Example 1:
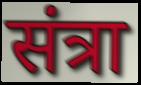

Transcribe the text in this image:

संत्रा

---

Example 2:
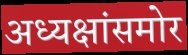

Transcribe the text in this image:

अध्यक्षांसमोर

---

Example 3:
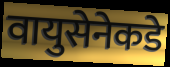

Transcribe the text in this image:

वायुसेनेकडे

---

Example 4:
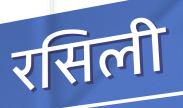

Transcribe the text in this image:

रसिली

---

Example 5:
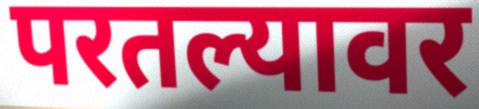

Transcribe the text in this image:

परतल्यावर